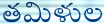
తమిళుల